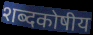
शब्दकोषीय